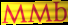
MMb